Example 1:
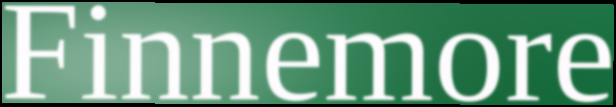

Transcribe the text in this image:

Finnemore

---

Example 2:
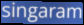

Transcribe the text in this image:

singaram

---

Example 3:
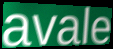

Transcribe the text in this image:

avale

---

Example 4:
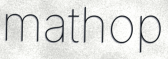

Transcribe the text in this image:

mathop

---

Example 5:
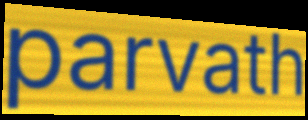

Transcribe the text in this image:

parvath